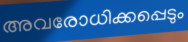
അവരോധിക്കപ്പെടും